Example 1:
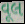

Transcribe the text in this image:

વૂલ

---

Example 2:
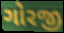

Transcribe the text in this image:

ગોરજી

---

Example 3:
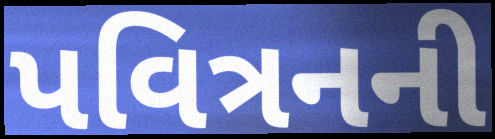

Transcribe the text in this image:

પવિત્રનની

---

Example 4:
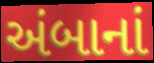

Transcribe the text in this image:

અંબાનાં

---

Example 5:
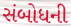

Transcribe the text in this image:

સંબોધની